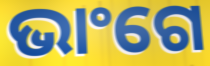
ଭାଂଗେ